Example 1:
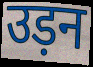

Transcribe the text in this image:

उड़न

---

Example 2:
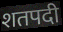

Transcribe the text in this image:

शतपदी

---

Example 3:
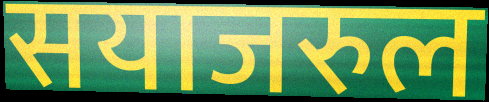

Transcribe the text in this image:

सयाजरुल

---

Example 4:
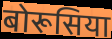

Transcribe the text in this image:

बोरूसिया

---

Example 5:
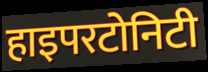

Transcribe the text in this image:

हाइपरटोनिटी